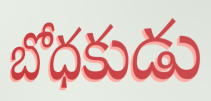
బోధకుడు